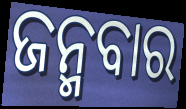
ଜନ୍ମବାର